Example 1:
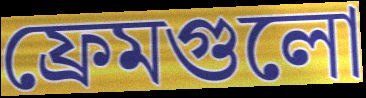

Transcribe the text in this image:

ফ্রেমগুলো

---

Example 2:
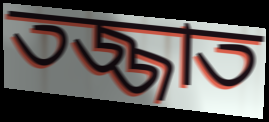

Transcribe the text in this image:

তজ্জাত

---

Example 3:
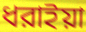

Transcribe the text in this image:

ধরাইয়া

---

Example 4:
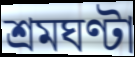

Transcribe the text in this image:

শ্রমঘণ্টা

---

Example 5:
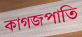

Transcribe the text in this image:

কাগজপাতি